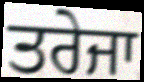
ਤਰੇਜਾ